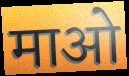
माओ